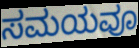
ಸಮಯವೂ